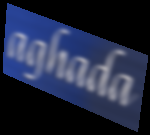
aghada